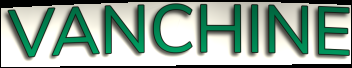
VANCHINE